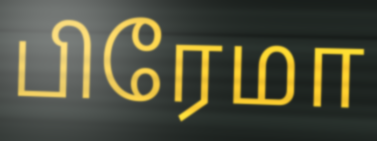
பிரேமா